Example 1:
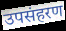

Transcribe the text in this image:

उपसंहरण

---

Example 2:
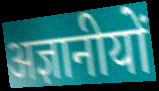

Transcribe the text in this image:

अज्ञानीयों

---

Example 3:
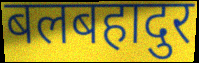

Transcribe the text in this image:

बलबहादुर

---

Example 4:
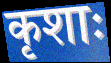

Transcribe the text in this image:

कृशाः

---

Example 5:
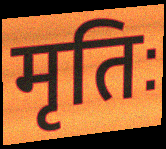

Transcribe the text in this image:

मृतिः